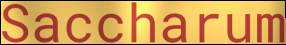
Saccharum